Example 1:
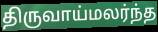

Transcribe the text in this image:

திருவாய்மலர்ந்த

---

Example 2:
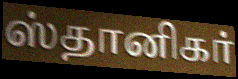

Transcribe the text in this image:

ஸ்தானிகர்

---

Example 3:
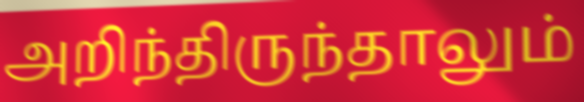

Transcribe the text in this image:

அறிந்திருந்தாலும்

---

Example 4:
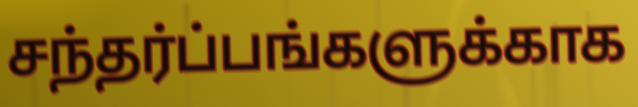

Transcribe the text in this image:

சந்தர்ப்பங்களுக்காக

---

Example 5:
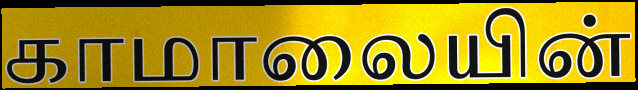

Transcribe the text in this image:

காமாலையின்